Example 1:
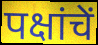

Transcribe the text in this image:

पक्षांचें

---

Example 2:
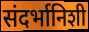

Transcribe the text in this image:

संदर्भानिशी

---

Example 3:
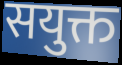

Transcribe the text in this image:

सयुक्त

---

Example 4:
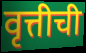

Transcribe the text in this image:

वृत्तीची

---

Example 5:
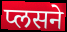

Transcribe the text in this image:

प्लसने